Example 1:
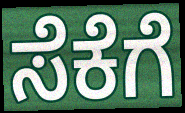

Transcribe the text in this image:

ಸೆಕೆಗೆ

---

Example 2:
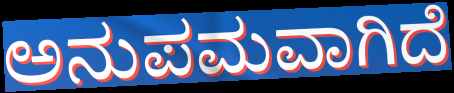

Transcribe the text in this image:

ಅನುಪಮವಾಗಿದೆ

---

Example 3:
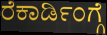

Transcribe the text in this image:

ರೆಕಾರ್ಡಿಂಗ್ಗೆ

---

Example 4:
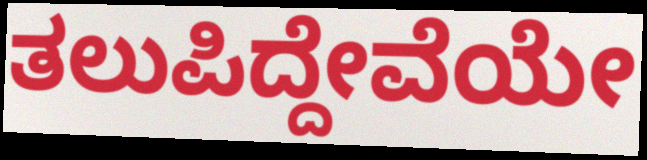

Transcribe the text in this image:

ತಲುಪಿದ್ದೇವೆಯೇ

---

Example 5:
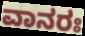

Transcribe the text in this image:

ವಾನರಃ